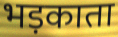
भड़काता